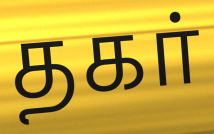
தகர்